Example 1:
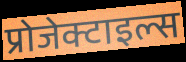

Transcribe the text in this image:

प्रोजेक्टाइल्स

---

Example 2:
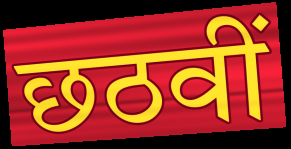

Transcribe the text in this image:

छठवीं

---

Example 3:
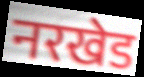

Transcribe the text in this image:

नरखेड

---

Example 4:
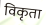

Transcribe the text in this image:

विकृता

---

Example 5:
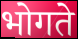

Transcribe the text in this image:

भोगते